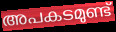
അപകടമുണ്ട്